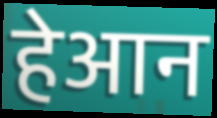
हेआन